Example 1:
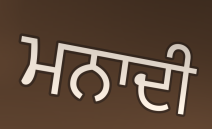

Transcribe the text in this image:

ਮਨਾਦੀ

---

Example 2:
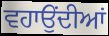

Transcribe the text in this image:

ਵਹਾਉਂਦੀਆਂ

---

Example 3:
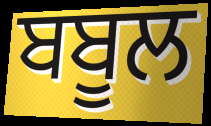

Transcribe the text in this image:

ਬਬੂਲ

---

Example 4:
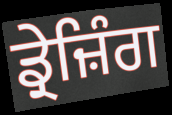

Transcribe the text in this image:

ਡ੍ਰੇਜ਼ਿੰਗ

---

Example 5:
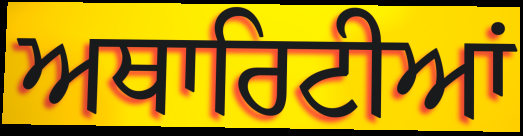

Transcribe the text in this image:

ਅਥਾਰਿਟੀਆਂ